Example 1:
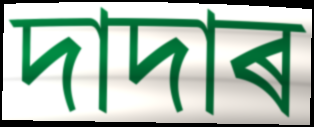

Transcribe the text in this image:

দাদাৰ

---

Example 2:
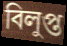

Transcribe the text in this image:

বিলুপ্ত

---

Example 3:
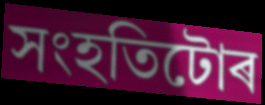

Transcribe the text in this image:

সংহতিটোৰ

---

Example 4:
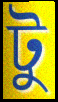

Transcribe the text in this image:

টু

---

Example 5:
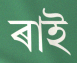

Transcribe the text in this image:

ৰাই